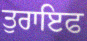
ਤੁਰਾਇਫ